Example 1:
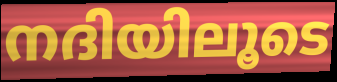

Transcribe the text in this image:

നദിയിലൂടെ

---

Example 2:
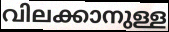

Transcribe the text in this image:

വിലക്കാനുള്ള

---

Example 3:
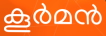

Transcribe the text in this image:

കൂർമൻ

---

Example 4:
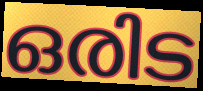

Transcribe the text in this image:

ഒരിട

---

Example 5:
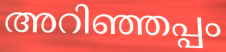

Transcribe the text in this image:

അറിഞ്ഞപ്പം